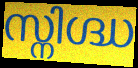
സ്നിഗ്ദ്ധ